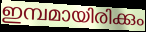
ഇമ്പമായിരിക്കും